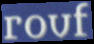
rouf